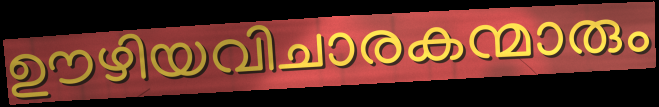
ഊഴിയവിചാരകന്മാരും